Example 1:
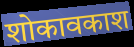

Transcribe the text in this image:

शोकावकाश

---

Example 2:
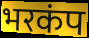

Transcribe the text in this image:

भरकंप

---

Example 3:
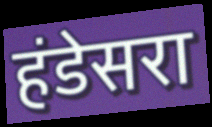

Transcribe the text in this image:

हंडेसरा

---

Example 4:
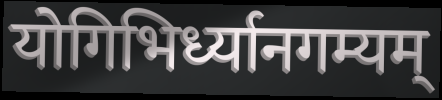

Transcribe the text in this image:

योगिभिर्ध्यानगम्यम्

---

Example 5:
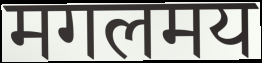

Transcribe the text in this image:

मगलमय